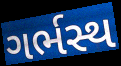
ગર્ભસ્થ